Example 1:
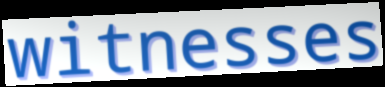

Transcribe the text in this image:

witnesses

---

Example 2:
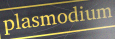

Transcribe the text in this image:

plasmodium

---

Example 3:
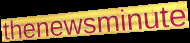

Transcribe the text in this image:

thenewsminute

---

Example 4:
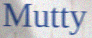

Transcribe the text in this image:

Mutty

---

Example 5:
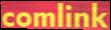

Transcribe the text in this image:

comlink